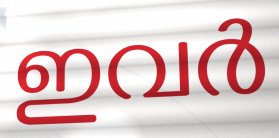
ഇവർ